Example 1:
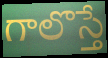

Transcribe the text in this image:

గాలొస్తే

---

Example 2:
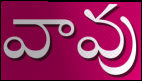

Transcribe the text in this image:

వావు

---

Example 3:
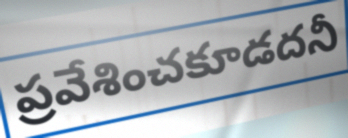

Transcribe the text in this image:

ప్రవేశించకూడదనీ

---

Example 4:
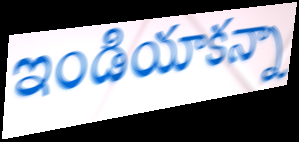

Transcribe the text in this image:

ఇండియాకన్నా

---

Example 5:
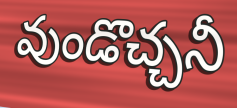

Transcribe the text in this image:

వుండొచ్చనీ